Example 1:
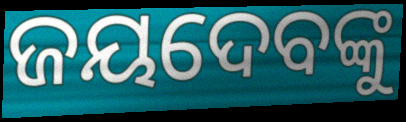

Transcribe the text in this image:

ଜୟଦେବଙ୍କୁ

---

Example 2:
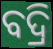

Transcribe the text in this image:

ବଦ୍ରି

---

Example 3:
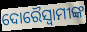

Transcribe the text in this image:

ଦୋରୈସ୍ବାମୀଙ୍କ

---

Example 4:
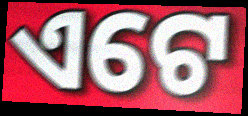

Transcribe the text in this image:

ଏଟେ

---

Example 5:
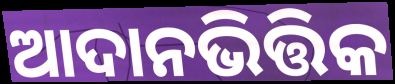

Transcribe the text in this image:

ଆଦାନଭିତ୍ତିକ